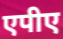
एपीए